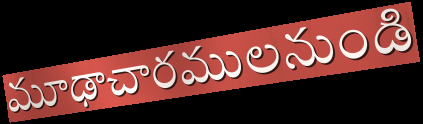
మూఢాచారములనుండి